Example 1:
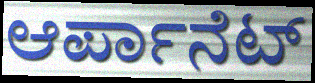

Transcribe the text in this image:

ಆರ್ಪಾನೆಟ್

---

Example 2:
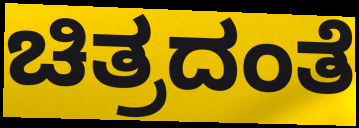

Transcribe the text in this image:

ಚಿತ್ರದಂತೆ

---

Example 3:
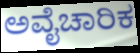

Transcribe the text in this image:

ಅವೈಚಾರಿಕ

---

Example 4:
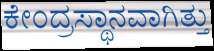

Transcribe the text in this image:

ಕೇಂದ್ರಸ್ಥಾನವಾಗಿತ್ತು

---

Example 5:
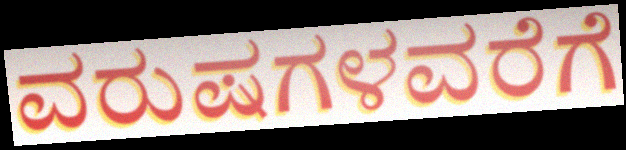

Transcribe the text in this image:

ವರುಷಗಳವರೆಗೆ